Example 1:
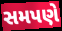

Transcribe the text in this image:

સમપણે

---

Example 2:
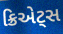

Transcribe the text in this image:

ક્રિએટ્સ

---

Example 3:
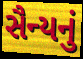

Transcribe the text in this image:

સૈન્યનું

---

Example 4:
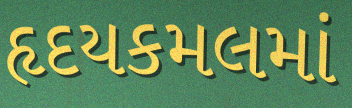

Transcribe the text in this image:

હૃદયકમલમાં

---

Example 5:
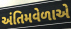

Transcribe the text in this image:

અંતિમવેળાએ